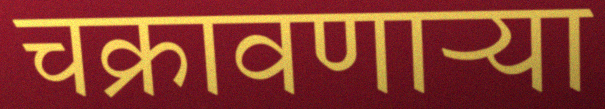
चक्रावणाऱ्या